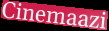
Cinemaazi